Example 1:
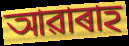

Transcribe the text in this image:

আৱাৰাহ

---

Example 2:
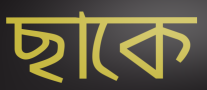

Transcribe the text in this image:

ছাকে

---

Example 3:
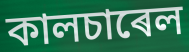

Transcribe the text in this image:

কালচাৰেল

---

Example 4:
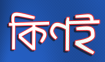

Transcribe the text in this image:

কিণই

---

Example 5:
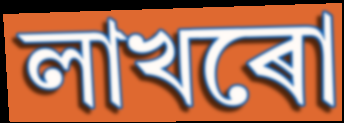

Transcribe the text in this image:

লাখৰো